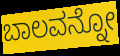
ಬಾಲವನ್ನೋ